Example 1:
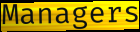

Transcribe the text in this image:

Managers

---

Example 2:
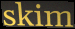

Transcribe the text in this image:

skim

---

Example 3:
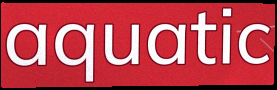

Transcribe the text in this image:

aquatic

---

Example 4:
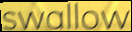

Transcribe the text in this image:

swallow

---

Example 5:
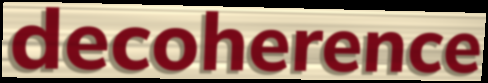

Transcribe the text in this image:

decoherence